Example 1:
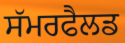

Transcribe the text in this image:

ਸੱਮਰਫੈਲਡ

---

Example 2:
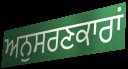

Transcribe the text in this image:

ਅਨੁਸਰਣਕਾਰਾਂ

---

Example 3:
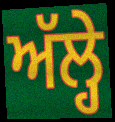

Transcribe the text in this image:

ਅੱਲ੍ਹੇ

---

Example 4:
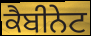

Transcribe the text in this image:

ਕੈਬੀਨੇਟ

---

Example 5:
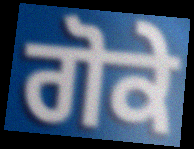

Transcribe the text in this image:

ਗੋਕੇ